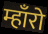
म्हाँरो